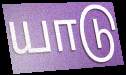
யாடு